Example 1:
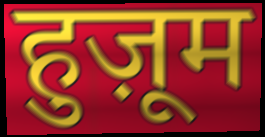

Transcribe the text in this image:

हुज़ूम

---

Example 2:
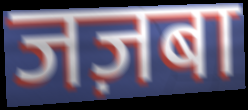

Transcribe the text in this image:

जज़बा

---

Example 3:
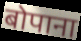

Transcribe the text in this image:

बोपाना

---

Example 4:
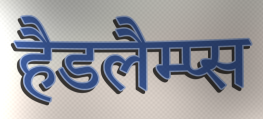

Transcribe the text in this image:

हैडलैम्प्स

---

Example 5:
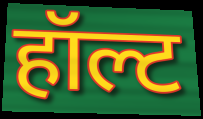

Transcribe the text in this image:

हॉल्‍ट